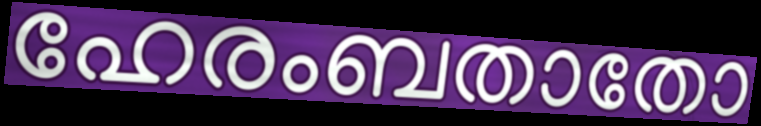
ഹേരംബതാതോ